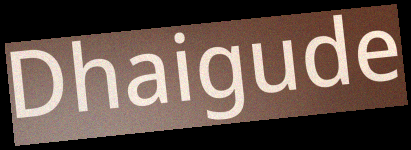
Dhaigude